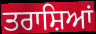
ਤਰਾਸ਼ਿਆਂ